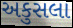
અકુસલા